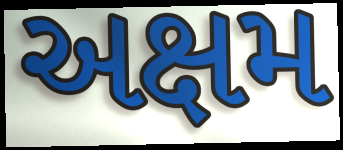
અક્ષમ